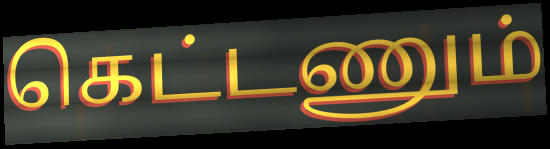
கெட்டணும்